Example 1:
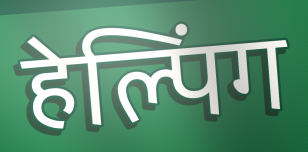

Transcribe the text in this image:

हेल्पिंग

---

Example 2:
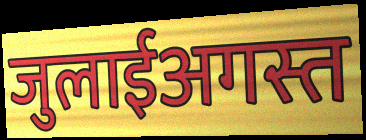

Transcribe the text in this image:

जुलाईअगस्त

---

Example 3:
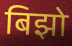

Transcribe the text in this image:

बिझो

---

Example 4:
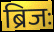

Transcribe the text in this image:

ब्रिजः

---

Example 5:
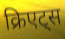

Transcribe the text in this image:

क्रिएट्स